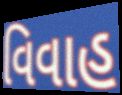
વિવાહ